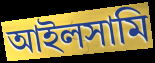
আইলসামি